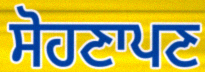
ਸੋਹਣਾਪਣ